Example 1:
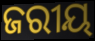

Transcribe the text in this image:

ଜରୀୟ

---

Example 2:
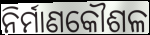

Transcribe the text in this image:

ନିର୍ମାଣକୌଶଳ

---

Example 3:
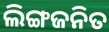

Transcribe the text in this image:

ଲିଙ୍ଗଜନିତ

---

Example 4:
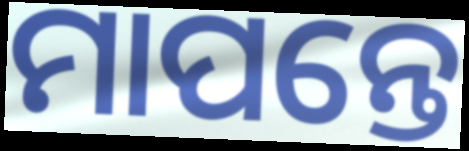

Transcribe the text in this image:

ମାପନ୍ତେ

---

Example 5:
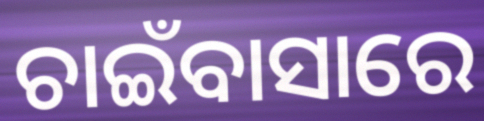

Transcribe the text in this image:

ଚାଇଁବାସାରେ